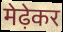
मेढ़ेकर